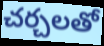
చర్చలతో